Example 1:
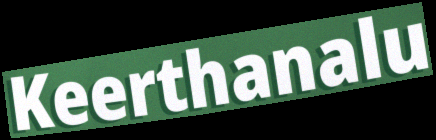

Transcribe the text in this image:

Keerthanalu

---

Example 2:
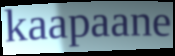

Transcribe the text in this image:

kaapaane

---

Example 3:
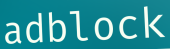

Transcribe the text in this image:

adblock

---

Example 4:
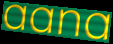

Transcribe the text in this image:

aana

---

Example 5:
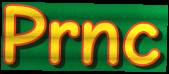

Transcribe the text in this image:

Prnc